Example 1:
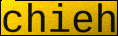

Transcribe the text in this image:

chieh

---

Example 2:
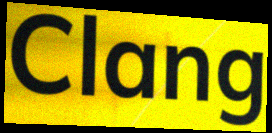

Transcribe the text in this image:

Clang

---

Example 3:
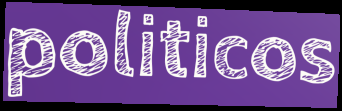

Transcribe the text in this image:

politicos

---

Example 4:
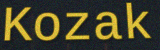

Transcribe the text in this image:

Kozak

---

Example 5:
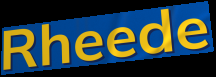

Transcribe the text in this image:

Rheede